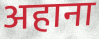
अहाना